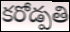
కరోడ్పతి